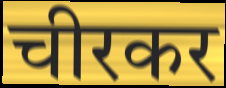
चीरकर